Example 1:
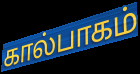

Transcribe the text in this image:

கால்பாகம்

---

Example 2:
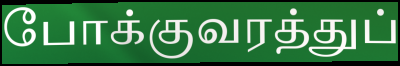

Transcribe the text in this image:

போக்குவரத்துப்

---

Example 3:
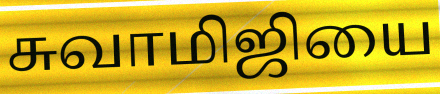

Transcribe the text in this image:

சுவாமிஜியை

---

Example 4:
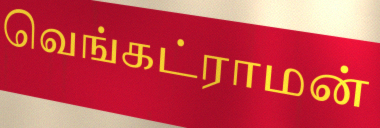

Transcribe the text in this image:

வெங்கட்ராமன்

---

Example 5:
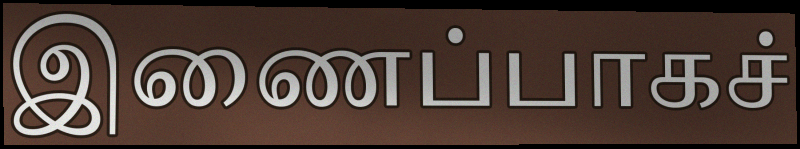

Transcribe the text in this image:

இணைப்பாகச்